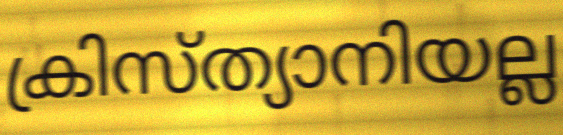
ക്രിസ്ത്യാനിയല്ല